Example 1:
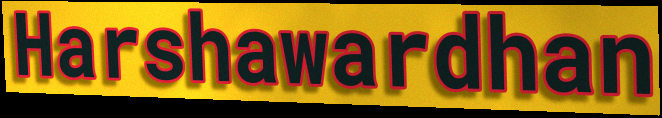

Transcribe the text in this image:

Harshawardhan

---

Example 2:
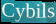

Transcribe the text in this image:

Cybils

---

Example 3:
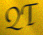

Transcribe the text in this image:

QT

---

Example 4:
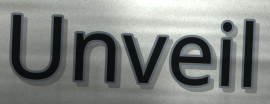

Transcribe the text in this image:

Unveil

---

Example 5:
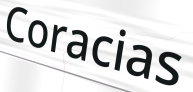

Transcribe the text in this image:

Coracias